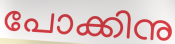
പോക്കിനു